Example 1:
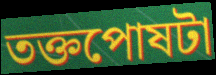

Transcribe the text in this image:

তক্তপোষটা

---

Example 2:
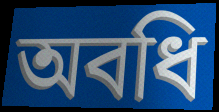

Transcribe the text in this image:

অবধি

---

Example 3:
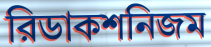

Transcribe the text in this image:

রিডাকশনিজম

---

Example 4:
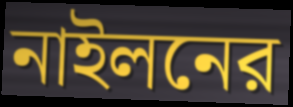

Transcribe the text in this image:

নাইলনের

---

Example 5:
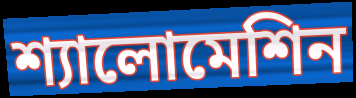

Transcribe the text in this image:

শ্যালোমেশিন